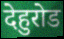
देहुरोड